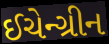
ઈચેન્ગ્રીન